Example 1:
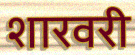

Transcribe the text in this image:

शारवरी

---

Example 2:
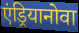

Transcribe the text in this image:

एंड्रियानोवा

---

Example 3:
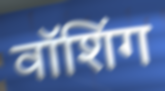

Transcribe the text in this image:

वॉशिंग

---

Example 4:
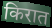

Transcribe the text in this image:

किरात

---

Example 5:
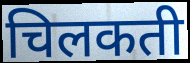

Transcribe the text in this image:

चिलकती